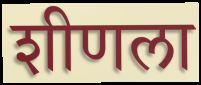
शीणला